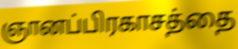
ஞானப்பிரகாசத்தை